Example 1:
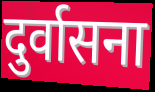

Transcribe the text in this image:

दुर्वासना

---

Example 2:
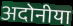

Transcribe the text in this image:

अदोनीया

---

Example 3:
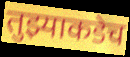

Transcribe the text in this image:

तुझ्याकडेच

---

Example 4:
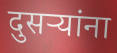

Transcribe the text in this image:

दुसऱ्यांना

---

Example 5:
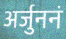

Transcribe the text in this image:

अर्जुननं